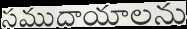
సముదాయాలను